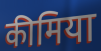
कीमिया